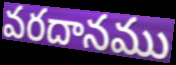
వరదానము